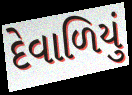
દેવાળિયું